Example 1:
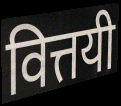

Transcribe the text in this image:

वित्तयी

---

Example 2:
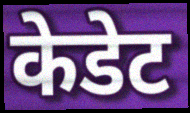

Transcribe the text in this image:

केडेट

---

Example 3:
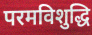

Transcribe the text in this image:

परमविशुद्धि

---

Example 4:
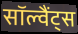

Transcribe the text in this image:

सॉल्वैंट्स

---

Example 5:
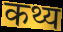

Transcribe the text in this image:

कथ्य